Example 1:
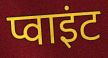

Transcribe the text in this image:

प्‍वाइंट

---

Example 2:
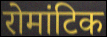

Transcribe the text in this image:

रोमांटिक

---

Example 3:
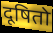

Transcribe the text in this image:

दूषितो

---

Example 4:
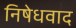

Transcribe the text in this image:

निषेधवाद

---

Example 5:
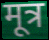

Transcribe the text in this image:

मूत्र